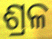
ଶ୍ରଳ